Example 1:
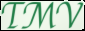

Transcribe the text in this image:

TMV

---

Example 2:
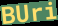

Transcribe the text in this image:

BUri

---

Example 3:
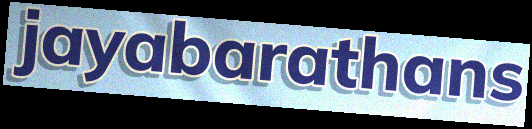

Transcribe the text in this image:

jayabarathans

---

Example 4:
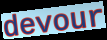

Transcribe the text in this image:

devour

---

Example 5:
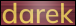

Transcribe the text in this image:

darek